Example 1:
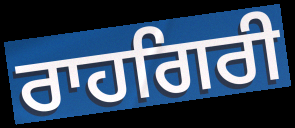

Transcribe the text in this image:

ਰਾਹਗਿਰੀ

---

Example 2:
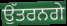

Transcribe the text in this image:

ਉੱਤਰਨਗੇ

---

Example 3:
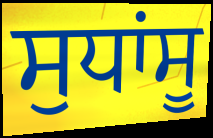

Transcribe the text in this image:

ਸੁਧਾਂਸੂ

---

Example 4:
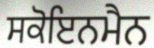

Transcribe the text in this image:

ਸਕੋਇਨਮੈਨ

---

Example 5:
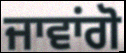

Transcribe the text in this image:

ਜਾਵਾਂਗੋ